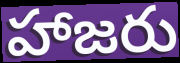
హాజరు